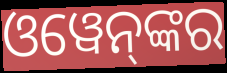
ଓୱେନ୍‌ଙ୍କର